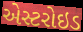
એસ્ટરોઇડ